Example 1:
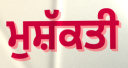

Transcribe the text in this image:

ਮੁਸ਼ੱਕਤੀ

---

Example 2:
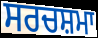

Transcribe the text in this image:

ਸਰਚਸ਼ਮਾ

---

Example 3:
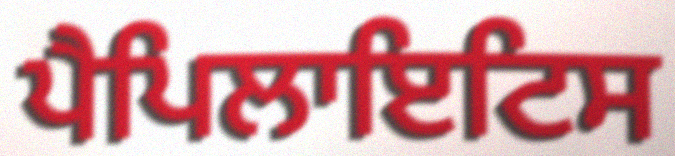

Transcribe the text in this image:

ਪੈਪਿਲਾਇਟਿਸ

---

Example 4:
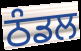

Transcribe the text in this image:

ਠੰਡਲ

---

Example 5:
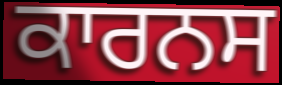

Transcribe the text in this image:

ਕਾਰਨਸ